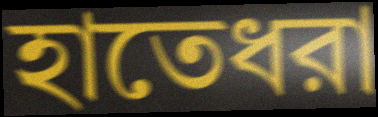
হাতেধরা